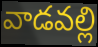
వాడవల్లి